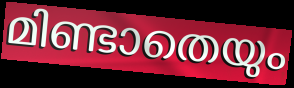
മിണ്ടാതെയും